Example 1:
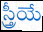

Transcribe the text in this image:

స్త్రీయే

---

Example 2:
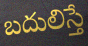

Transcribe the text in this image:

బదులిస్తే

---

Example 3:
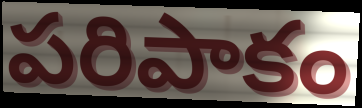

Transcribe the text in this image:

పరిపాకం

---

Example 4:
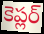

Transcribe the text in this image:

కెప్లర్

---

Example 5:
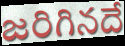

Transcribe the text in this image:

జరిగినదే